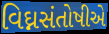
વિઘ્નસંતોષીએ